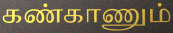
கண்காணும்